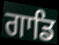
ਗਾਡਿ